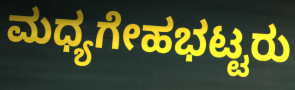
ಮಧ್ಯಗೇಹಭಟ್ಟರು